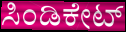
ಸಿಂಡಿಕೇಟ್